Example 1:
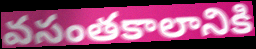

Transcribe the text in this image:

వసంతకాలానికి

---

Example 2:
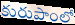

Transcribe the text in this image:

కురుపాంలో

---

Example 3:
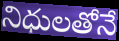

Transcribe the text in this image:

నిధులతోనే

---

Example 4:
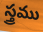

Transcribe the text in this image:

స్త్రము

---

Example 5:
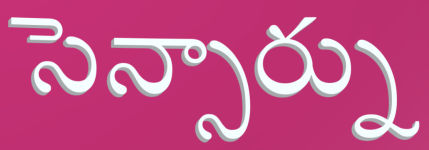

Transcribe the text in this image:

సెన్సార్ను